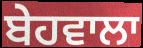
ਬੇਹਵਾਲਾ